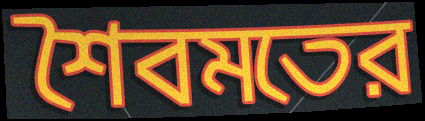
শৈবমতের